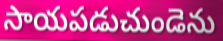
సాయపడుచుండెను